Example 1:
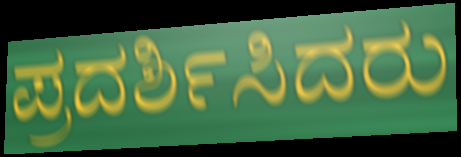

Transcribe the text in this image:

ಪ್ರದರ್ಶಿಸಿದರು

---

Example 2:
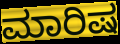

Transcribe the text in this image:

ಮಾರಿಷ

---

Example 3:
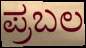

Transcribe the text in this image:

ಪ್ರಬಲ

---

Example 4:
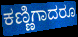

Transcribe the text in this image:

ಕಣ್ಣಿಗಾದರೂ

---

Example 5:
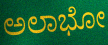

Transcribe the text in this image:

ಅಲಾಭೋ